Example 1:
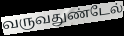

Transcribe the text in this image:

வருவதுண்டேல்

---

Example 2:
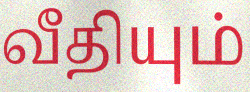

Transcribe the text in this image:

வீதியும்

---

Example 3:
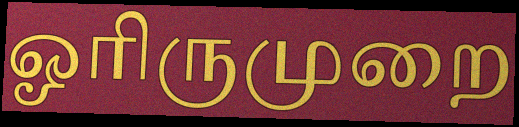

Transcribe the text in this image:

ஓரிருமுறை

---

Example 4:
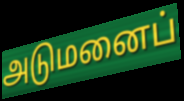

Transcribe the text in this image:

அடுமனைப்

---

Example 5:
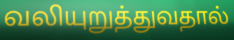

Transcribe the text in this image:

வலியுறுத்துவதால்